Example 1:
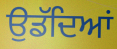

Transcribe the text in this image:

ਉਡੱਦਿਆਂ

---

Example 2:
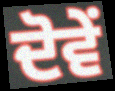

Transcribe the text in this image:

ਦੋਵੇਂ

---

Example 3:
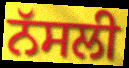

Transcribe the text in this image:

ਨੱਸਲੀ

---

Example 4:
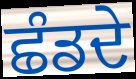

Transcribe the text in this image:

ਛੰਡਦੇ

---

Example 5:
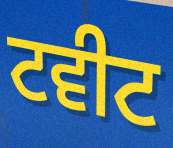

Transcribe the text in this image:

ਟਵੀਟ